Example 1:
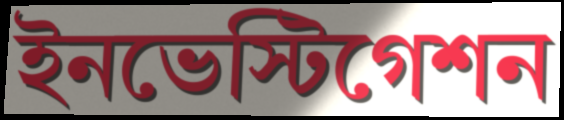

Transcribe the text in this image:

ইনভেস্টিগেশন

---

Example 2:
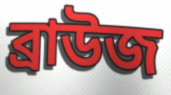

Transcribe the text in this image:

ব্রাউজ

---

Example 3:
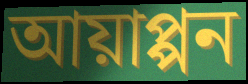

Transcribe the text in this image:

আয়াপ্পন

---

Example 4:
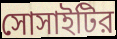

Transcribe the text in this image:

সোসাইটির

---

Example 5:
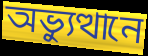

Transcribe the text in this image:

অভ্যুত্থানে